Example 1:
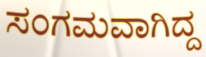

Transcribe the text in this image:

ಸಂಗಮವಾಗಿದ್ದ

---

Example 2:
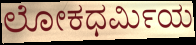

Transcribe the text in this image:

ಲೋಕಧರ್ಮಿಯ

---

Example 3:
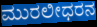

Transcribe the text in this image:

ಮುರಲೀಧರನ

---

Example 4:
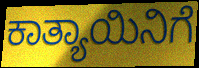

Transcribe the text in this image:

ಕಾತ್ಯಾಯಿನಿಗೆ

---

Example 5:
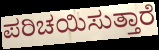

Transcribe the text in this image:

ಪರಿಚಯಿಸುತ್ತಾರೆ